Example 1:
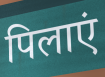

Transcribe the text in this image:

पिलाएं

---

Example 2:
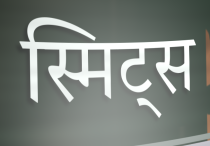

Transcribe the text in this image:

स्मिट्स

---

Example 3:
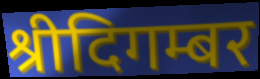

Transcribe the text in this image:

श्रीदिगम्बर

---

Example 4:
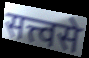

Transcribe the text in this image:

सत्त्वसे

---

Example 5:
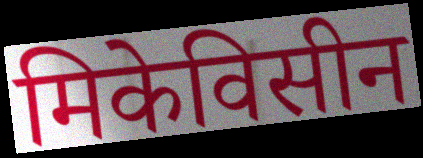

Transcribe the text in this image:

मिकेविसीन